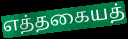
எத்தகையத்